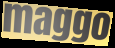
maggo